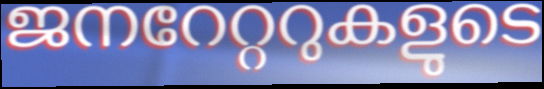
ജനറേറ്ററുകളുടെ